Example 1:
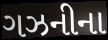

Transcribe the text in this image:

ગઝનીના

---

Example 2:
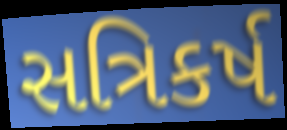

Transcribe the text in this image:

સત્રિકર્ષ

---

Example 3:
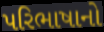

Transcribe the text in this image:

પરિભાષાનો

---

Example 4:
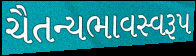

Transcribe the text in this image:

ચૈતન્યભાવસ્વરૂપ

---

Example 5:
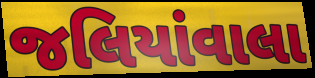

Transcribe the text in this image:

જલિયાંવાલા